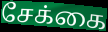
சேக்கை